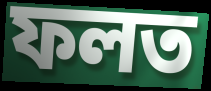
ফলত